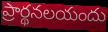
ప్రార్థనలయందు